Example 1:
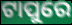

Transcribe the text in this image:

ଟାପୁରେ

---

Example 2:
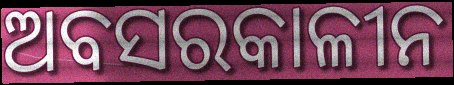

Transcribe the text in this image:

ଅବସରକାଳୀନ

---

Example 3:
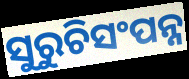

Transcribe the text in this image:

ସୁରୁଚିସଂପନ୍ନ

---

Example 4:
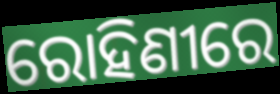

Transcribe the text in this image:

ରୋହିଣୀରେ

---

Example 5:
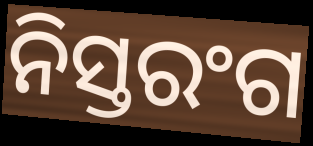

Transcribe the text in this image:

ନିସ୍ତରଂଗ